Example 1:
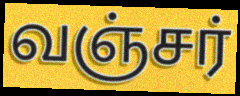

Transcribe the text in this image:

வஞ்சர்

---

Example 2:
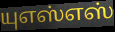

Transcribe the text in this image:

யுஎஸ்எஸ்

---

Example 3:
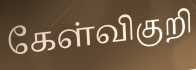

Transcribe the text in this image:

கேள்விகுறி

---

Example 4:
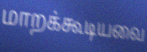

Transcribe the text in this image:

மாறக்கூடியவை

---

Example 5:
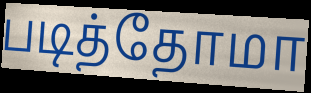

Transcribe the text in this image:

படித்தோமா